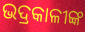
ଭଦ୍ରକାଳୀଙ୍କ